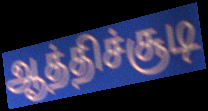
ஆத்திச்சூடி